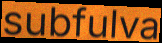
subfulva